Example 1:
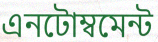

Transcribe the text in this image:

এনটোম্বমেন্ট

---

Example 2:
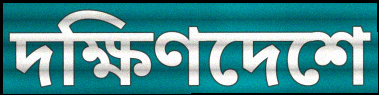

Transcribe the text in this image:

দক্ষিণদেশে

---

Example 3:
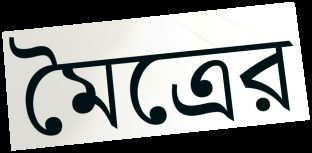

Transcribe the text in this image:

মৈত্রের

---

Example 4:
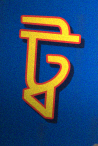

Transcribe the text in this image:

ট্ব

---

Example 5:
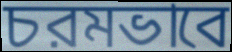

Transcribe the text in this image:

চরমভাবে